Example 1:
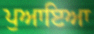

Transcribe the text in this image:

ਪੁਆਇਆ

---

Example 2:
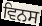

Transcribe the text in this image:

ਵਿਨਸ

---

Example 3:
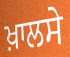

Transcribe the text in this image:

ਖ਼ਾਲਸੇ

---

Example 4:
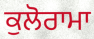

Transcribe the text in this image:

ਕੁਲੋਰਾਮਾ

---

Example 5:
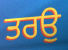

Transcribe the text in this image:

ਤਰਉ